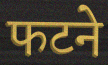
फटने